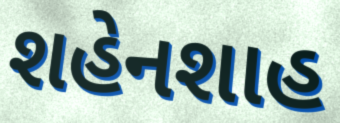
શહેનશાહ